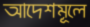
আদেশমূলে